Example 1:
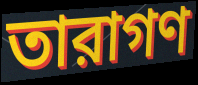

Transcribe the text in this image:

তারাগণ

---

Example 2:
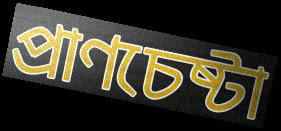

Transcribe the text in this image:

প্রাণচেষ্টা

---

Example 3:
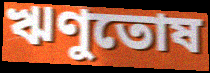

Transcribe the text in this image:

ঋণুতোষ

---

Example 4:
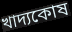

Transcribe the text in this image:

খাদ্যকোষ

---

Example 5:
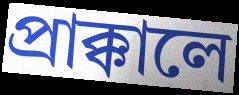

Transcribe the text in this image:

প্রাক্কালে